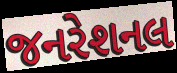
જનરેશનલ